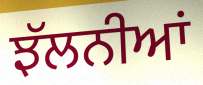
ਝੱਲਨੀਆਂ